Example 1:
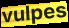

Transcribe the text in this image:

vulpes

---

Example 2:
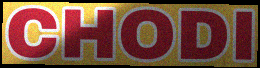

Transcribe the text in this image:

CHODI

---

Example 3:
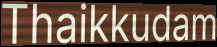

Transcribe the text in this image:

Thaikkudam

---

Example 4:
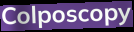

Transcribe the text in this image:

Colposcopy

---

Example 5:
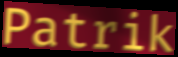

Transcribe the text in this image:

Patrik